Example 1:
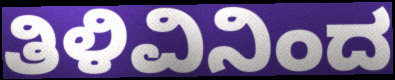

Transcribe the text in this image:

ತಿಳಿವಿನಿಂದ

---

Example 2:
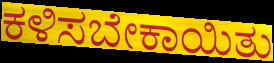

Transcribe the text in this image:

ಕಳಿಸಬೇಕಾಯಿತು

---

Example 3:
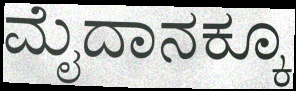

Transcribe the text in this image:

ಮೈದಾನಕ್ಕೂ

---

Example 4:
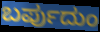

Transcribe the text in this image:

ಬರ್ಪುದುಂ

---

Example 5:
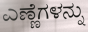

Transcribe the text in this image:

ಎಣ್ಣೆಗಳನ್ನು